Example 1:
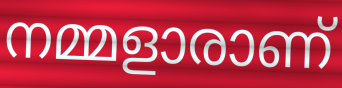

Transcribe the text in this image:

നമ്മളാരാണ്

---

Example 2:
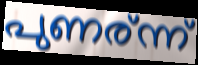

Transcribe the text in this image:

പുണര്ന്ന്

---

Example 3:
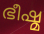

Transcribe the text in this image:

ഭീഷ്മ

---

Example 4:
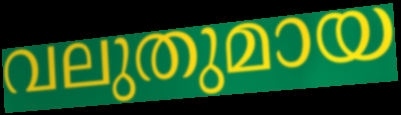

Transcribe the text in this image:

വലുതുമായ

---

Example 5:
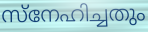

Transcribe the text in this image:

സ്നേഹിച്ചതും